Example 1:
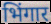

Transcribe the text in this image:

भिंगार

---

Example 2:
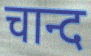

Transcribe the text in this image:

चान्द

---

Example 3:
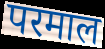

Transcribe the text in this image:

परमाल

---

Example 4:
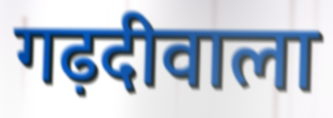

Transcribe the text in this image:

गढ़दीवाला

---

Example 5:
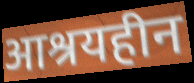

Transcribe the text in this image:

आश्रयहीन